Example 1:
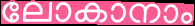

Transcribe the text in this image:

ലോകാനാം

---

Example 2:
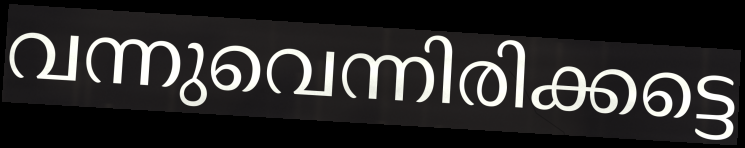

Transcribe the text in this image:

വന്നുവെന്നിരിക്കട്ടെ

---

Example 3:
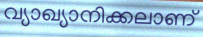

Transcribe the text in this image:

വ്യാഖ്യാനിക്കലാണ്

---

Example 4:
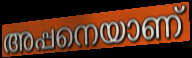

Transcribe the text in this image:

അപ്പനെയാണ്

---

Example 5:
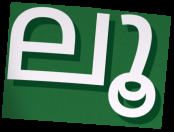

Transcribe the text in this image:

ലൂ